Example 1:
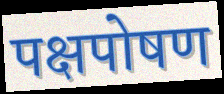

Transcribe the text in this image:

पक्षपोषण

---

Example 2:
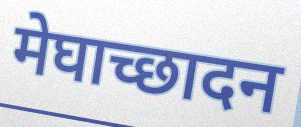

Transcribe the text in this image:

मेघाच्छादन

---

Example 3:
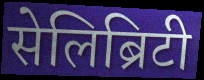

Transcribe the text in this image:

सेलिब्रिटी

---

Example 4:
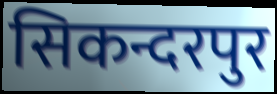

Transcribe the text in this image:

सिकन्दरपुर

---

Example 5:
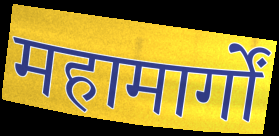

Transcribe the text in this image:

महामार्गों